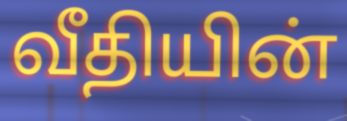
வீதியின்